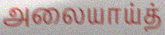
அலையாய்த்